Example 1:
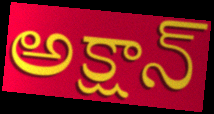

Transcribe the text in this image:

అక్షాన్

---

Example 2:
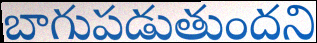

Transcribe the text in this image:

బాగుపడుతుందని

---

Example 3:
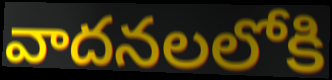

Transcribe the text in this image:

వాదనలలోకి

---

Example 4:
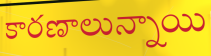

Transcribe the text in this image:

కారణాలున్నాయి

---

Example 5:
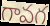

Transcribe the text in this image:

గావగ